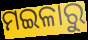
ମଇଳାରୁ